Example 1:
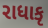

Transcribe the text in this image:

રાધાકૃ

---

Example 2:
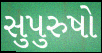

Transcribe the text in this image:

સુપુરુષો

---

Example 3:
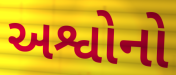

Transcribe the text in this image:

અશ્વોનો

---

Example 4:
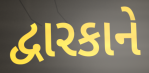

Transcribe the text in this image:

દ્વારકાને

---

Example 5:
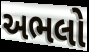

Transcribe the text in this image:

અભલો